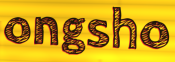
ongsho